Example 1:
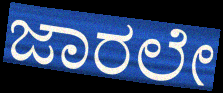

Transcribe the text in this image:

ಜಾರಲೇ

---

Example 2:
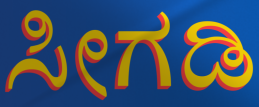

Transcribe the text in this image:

ಸೀಗಡಿ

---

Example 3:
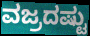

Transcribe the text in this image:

ವಜ್ರದಷ್ಟು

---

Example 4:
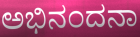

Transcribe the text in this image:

ಅಭಿನಂದನಾ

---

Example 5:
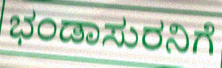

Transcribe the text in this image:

ಭಂಡಾಸುರನಿಗೆ